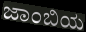
ಜಾಂಬಿಯ